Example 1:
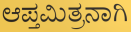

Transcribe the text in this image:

ಆಪ್ತಮಿತ್ರನಾಗಿ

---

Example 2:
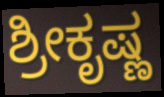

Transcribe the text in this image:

ಶ್ರೀಕೃಷ್ಣ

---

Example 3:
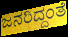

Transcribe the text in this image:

ಜನರಿದ್ದಂತೆ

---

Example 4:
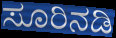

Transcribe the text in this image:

ಸೂರಿನಡಿ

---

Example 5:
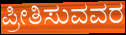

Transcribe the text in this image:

ಪ್ರೀತಿಸುವವರ